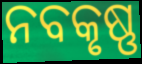
ନବକୃଷ୍ଣ